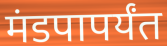
मंडपापर्यंत